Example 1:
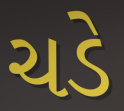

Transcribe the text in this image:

ચડે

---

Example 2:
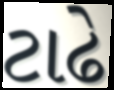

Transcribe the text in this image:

ટાઢે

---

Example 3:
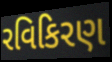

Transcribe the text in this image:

રવિકિરણ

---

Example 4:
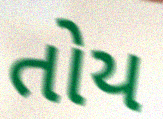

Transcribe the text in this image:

તોય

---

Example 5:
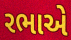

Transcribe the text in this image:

રભાએ